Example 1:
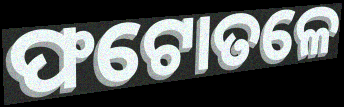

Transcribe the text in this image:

ଫଟୋତଳେ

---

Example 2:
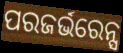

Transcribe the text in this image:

ପରଜର୍ଭରେନ୍ସ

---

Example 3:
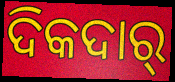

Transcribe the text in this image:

ଦିକଦାର୍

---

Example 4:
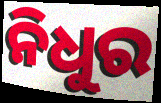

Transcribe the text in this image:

ନିଧୁର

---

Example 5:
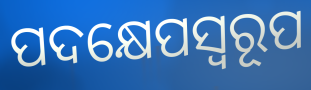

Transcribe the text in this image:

ପଦକ୍ଷେପସ୍ଵରୂପ